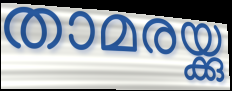
താമരയ്ക്കു